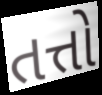
તત્તો